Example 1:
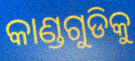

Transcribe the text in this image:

କାଣ୍ଡଗୁଡିକୁ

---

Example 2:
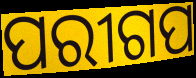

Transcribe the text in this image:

ପରୀଗପ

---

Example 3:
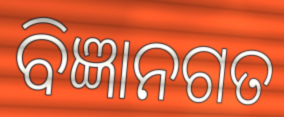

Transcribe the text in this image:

ବିଜ୍ଞାନଗତ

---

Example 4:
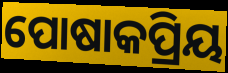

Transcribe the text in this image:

ପୋଷାକପ୍ରିୟ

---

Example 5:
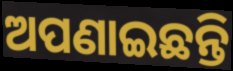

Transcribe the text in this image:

ଅପଣାଇଛନ୍ତି